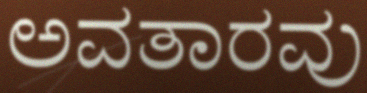
ಅವತಾರವು